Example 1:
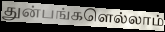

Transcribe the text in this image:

துன்பங்களெல்லாம்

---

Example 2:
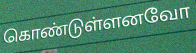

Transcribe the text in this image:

கொண்டுள்ளனவோ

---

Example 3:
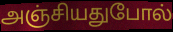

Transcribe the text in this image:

அஞ்சியதுபோல்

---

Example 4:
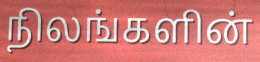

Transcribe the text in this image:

நிலங்களின்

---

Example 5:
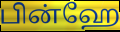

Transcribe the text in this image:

பின்ஹே